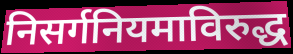
निसर्गनियमाविरुद्ध